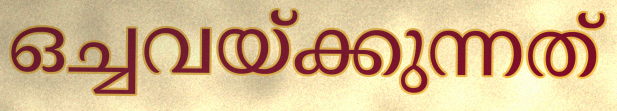
ഒച്ചവയ്ക്കുന്നത്